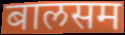
बालसम